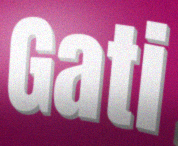
Gati